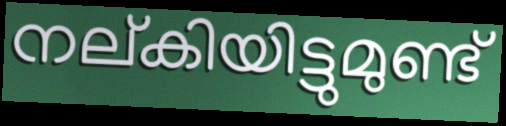
നല്കിയിട്ടുമുണ്ട്